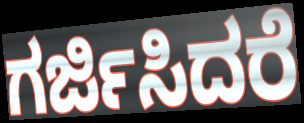
ಗರ್ಜಿಸಿದರೆ